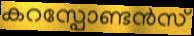
കറസ്പോണ്ടൻസ്